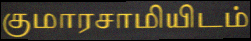
குமாரசாமியிடம்